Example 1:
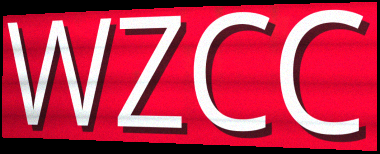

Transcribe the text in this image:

WZCC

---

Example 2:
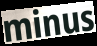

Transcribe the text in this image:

minus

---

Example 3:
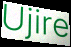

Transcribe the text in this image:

Ujire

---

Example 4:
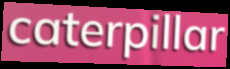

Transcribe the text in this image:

caterpillar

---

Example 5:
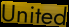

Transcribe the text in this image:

United